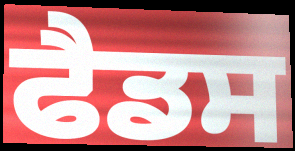
ਫੈਡਸ